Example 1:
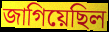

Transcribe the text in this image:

জাগিয়েছিল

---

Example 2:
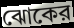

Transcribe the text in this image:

ঝোকের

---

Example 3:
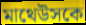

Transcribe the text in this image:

মাথেউসকে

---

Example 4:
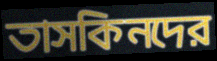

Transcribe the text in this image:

তাসকিনদের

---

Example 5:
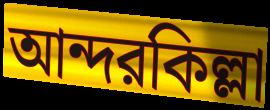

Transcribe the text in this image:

আন্দরকিল্লা